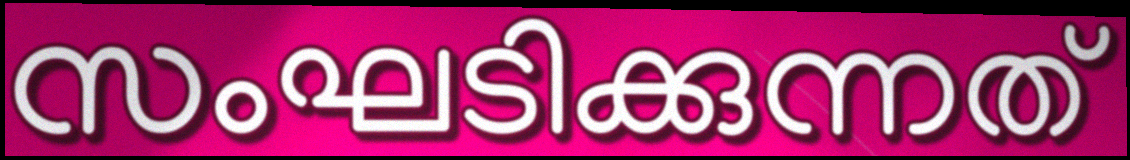
സംഘടിക്കുന്നത്